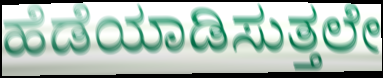
ಹೆಡೆಯಾಡಿಸುತ್ತಲೇ